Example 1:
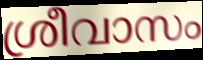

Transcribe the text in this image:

ശ്രീവാസം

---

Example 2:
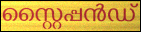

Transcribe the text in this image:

സ്റ്റൈപ്പൻഡ്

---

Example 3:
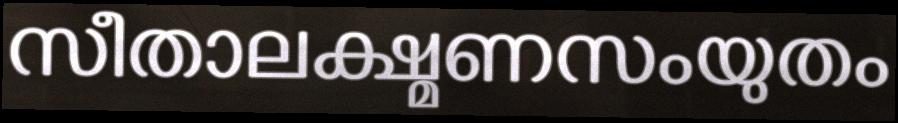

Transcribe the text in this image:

സീതാലക്ഷ്മണസംയുതം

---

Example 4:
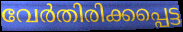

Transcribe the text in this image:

വേർതിരിക്കപ്പെട്ട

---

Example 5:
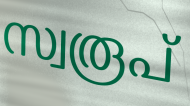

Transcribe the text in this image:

സ്വരൂപ്